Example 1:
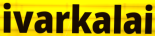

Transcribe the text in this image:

ivarkalai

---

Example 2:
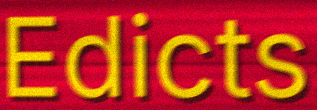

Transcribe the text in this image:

Edicts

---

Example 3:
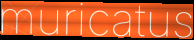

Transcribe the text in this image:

muricatus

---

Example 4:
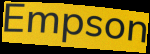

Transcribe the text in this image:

Empson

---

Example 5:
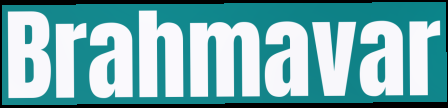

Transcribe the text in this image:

Brahmavar